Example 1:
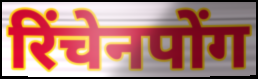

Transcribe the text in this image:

रिंचेनपोंग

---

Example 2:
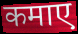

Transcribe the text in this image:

कमाए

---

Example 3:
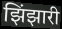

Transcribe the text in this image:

झिंझारी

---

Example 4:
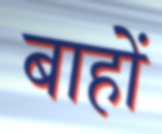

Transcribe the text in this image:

बाहों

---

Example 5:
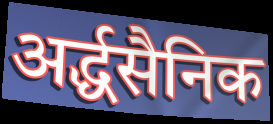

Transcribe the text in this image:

अर्द्धसैनिक